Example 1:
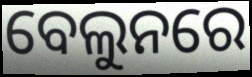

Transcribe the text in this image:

ବେଲୁନରେ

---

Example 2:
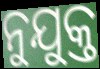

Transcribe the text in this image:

ନୁଯୁକ୍ତ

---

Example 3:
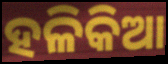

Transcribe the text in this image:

ହଳିକିଆ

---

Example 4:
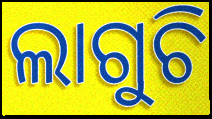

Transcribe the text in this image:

ଲାଗୁଚି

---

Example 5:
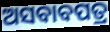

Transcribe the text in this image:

ଅସବାବପତ୍ର